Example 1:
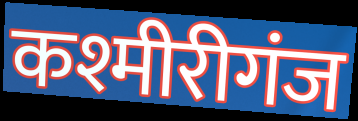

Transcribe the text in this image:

कश्मीरीगंज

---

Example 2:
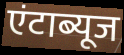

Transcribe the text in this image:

एंटाब्यूज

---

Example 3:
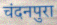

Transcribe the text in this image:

चंदनपुरा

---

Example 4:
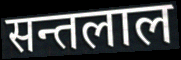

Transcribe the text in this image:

सन्तलाल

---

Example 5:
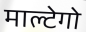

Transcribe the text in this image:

माल्टेगो